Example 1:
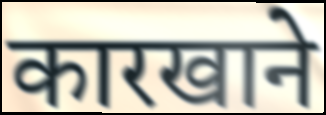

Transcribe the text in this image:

कारखाने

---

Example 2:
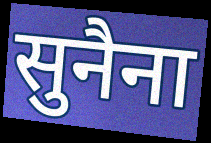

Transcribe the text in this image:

सुनैना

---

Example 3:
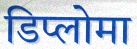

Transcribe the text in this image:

डिप्‍लोमा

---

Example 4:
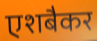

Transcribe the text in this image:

एशबैकर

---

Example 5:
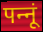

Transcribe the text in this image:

पन्नूं